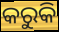
କରୁକି